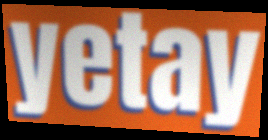
yetay